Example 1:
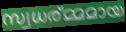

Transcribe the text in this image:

സ്വധര്മ്മമായ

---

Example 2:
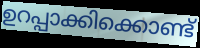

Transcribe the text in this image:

ഉറപ്പാക്കിക്കൊണ്ട്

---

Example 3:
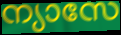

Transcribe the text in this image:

ന്യാസേ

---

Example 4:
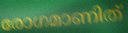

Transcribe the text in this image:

രോഗമാണിത്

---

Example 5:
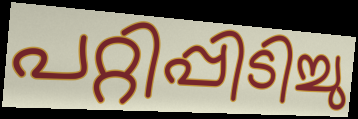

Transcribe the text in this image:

പറ്റിപ്പിടിച്ചു